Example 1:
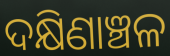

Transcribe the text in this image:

ଦକ୍ଷିଣାଞ୍ଚଳ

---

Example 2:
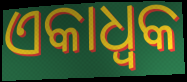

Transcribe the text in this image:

ଏକାଧ୍ଵକ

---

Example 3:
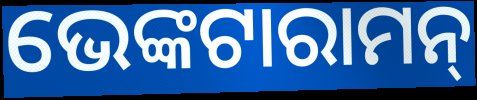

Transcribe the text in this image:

ଭେଙ୍କଟାରାମନ୍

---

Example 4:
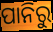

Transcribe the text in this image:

ପାନିରୁ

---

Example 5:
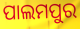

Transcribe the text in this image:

ପାଲମପୁର